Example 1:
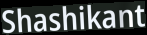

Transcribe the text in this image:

Shashikant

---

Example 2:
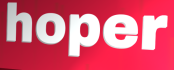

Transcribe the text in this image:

hoper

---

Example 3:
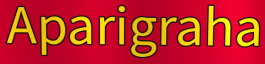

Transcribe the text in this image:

Aparigraha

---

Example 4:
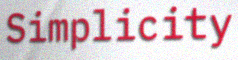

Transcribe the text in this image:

Simplicity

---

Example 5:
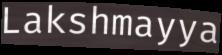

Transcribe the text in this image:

Lakshmayya